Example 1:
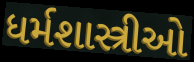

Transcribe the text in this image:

ધર્મશાસ્ત્રીઓ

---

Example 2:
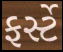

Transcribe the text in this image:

ફર્સ્ટે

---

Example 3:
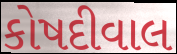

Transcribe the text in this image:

કોષદીવાલ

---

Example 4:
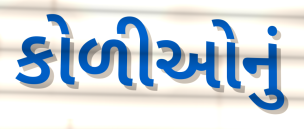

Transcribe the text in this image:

કોળીઓનું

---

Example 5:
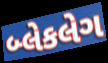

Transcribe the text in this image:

બ્લેકલેગ